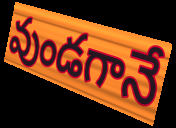
వుండగానే